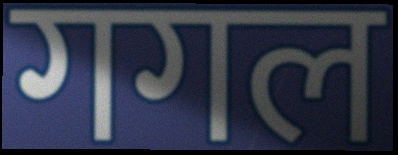
गगल